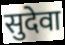
सुदेवा